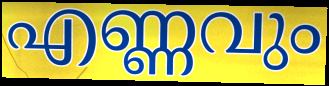
എണ്ണവും